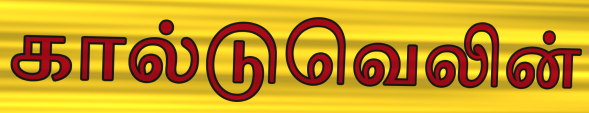
கால்டுவெலின்